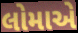
લોમાએ